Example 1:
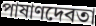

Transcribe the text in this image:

পাষাণদেবতা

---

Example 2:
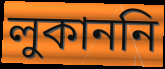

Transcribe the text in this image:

লুকাননি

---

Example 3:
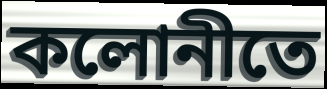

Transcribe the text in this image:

কলোনীতে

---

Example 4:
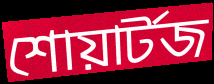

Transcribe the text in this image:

শোয়ার্টজ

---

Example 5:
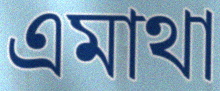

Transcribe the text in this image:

এমাথা